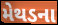
મેથડના